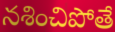
నశించిపోతే